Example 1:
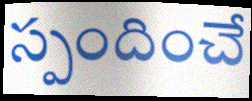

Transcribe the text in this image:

స్పందించే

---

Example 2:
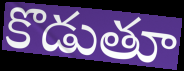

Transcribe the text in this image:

కొడుతూ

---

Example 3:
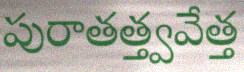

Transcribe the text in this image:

పురాతత్త్వవేత్త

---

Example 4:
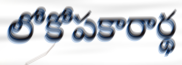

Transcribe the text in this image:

లోకోపకారార్థ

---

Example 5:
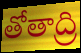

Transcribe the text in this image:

తోతాద్రి